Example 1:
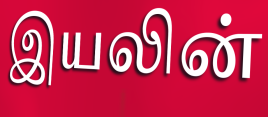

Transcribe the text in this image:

இயலின்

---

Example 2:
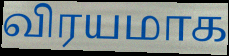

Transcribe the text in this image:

விரயமாக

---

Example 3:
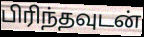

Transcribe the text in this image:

பிரிந்தவுடன்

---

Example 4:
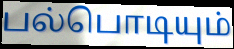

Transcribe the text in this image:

பல்பொடியும்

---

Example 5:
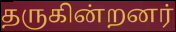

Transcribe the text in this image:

தருகின்றனர்